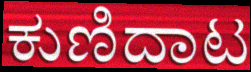
ಕುಣಿದಾಟ